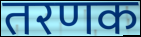
तरणक